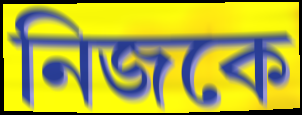
নিজকে